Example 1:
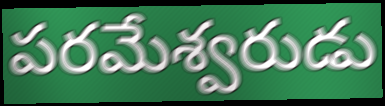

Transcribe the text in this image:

పరమేశ్వరుడు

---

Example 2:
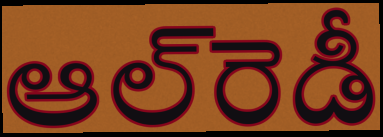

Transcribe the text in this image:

ఆల్‌రెడీ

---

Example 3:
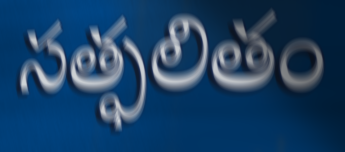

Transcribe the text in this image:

సత్ఫలితం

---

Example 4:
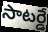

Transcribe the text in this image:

సాటర్డే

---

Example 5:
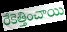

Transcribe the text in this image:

రేకెత్తించాయి